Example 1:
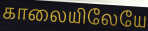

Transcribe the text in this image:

காலையிலேயே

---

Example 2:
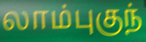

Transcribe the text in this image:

லாம்புகுந்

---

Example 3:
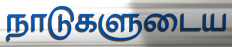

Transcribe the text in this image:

நாடுகளுடைய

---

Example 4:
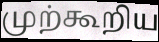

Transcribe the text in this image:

முற்கூறிய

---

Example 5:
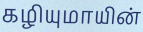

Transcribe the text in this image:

கழியுமாயின்